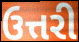
ઉત્તરી